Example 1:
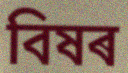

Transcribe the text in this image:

বিষৰ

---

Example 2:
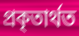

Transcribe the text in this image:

প্ৰকৃতাৰ্থত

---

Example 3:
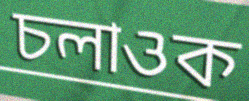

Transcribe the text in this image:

চলাওক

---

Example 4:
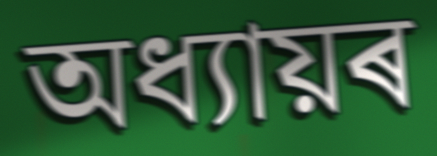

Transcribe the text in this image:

অধ্যায়ৰ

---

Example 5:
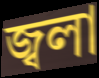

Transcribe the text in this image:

জ্বলা